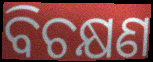
ବିଚକ୍ଷଣ